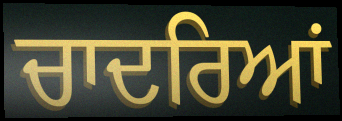
ਚਾਦਰਿਆਂ